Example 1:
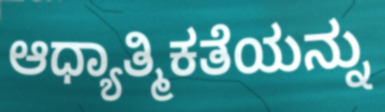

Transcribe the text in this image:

ಆಧ್ಯಾತ್ಮಿಕತೆಯನ್ನು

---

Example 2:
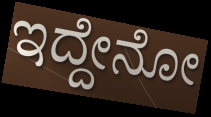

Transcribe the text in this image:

ಇದ್ದೇನೋ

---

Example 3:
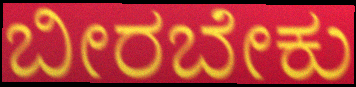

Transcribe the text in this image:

ಬೀರಬೇಕು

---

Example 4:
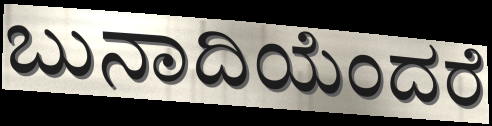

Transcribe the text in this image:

ಬುನಾದಿಯೆಂದರೆ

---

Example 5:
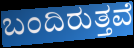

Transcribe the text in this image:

ಬಂದಿರುತ್ತವೆ